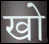
खो